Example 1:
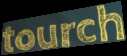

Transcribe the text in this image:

tourch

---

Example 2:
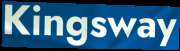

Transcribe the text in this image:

Kingsway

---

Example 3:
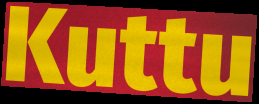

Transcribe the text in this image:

Kuttu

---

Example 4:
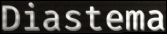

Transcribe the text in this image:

Diastema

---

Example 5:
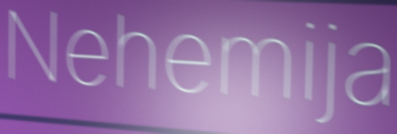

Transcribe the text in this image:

Nehemija